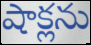
షాక్లను